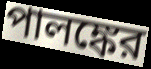
পালঙ্কের